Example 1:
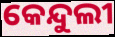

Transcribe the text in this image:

କେନ୍ଦୁଲୀ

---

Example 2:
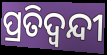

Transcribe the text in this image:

ପ୍ରତିଦ୍ଵନ୍ଦୀ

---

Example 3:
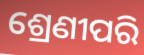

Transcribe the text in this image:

ଶ୍ରେଣୀପରି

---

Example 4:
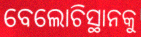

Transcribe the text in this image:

ବେଲୋଚିସ୍ଥାନକୁ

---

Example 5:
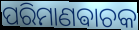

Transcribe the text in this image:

ପରିମାଣଵାଚକ